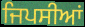
ਜਿਪਸੀਆਂ